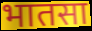
भातसा